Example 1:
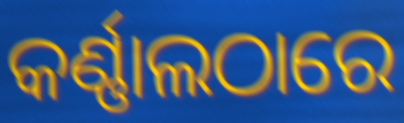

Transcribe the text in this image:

କର୍ଣ୍ଣାଲଠାରେ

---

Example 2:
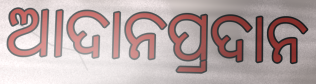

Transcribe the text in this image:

ଆଦାନପ୍ରଦାନ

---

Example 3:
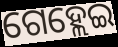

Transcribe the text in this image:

ଗେହ୍ଲେଇ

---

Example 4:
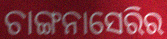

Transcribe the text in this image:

ଚାଙ୍ଗନାସେରିର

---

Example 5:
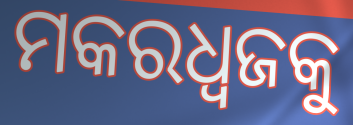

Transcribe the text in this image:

ମକରଧ୍ୱଜକୁ